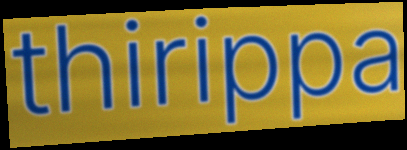
thirippa